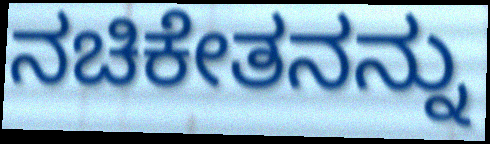
ನಚಿಕೇತನನ್ನು